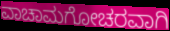
ವಾಚಾಮಗೋಚರವಾಗಿ